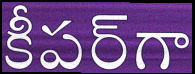
కీపర్‌గా